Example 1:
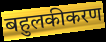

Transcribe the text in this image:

बहुलकीकरण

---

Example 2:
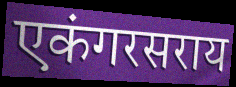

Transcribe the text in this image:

एकंगरसराय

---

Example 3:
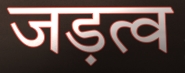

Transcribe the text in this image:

जड़त्व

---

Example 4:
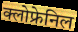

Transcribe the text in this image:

क्लोफ्रेनिल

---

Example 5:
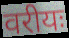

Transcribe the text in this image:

वरीयः